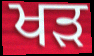
ਖੜ